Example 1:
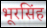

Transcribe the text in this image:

भूरसिंह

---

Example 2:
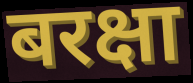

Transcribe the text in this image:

बरक्षा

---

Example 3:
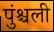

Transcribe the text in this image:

पुंश्चली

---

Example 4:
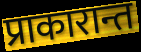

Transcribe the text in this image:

प्राकारान्त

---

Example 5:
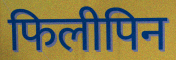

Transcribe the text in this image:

फिलीपिन